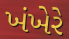
ખંખેરે